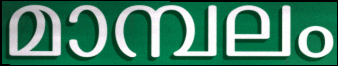
മാമ്പലം